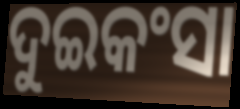
ଦୁଇକଂସା